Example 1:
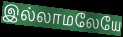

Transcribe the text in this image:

இல்லாமலேயே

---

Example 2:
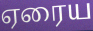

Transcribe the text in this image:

ஏரைய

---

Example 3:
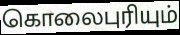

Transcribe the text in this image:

கொலைபுரியும்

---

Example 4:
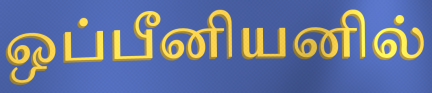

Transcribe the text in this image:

ஒப்பீனியனில்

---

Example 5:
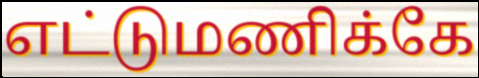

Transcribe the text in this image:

எட்டுமணிக்கே